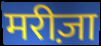
मरीज़ा